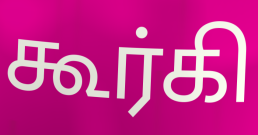
கூர்கி